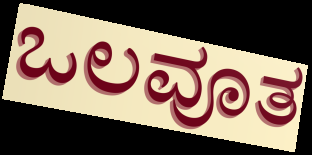
ಒಲವೂತ